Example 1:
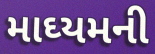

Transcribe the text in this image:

માઘ્યમની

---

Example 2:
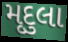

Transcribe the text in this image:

મૃદુલા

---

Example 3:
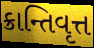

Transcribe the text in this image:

ક્રાન્તિવૃત્ત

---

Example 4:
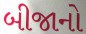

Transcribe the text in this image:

બીજાનો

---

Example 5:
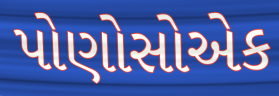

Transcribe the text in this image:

પોણોસોએક